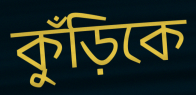
কুঁড়িকে